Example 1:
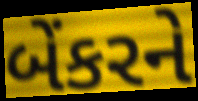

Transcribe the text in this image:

બેંકરને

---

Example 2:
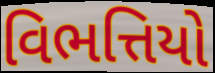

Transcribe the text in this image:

વિભત્તિયો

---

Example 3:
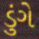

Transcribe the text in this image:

ડુંગે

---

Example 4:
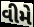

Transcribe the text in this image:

વીમે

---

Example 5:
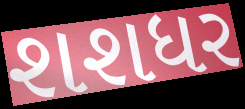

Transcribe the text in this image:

શશધર